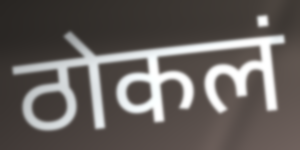
ठोकलं